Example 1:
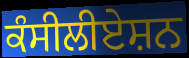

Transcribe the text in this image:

ਕੰਸੀਲੀਏਸ਼ਨ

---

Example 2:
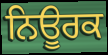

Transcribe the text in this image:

ਨਿਊਰਕ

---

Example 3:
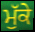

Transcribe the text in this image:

ਮੁੱਕੇ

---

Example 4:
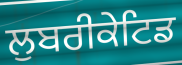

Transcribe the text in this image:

ਲੁਬਰੀਕੇਟਿਡ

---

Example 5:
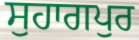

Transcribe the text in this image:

ਸੁਹਾਗਪੁਰ